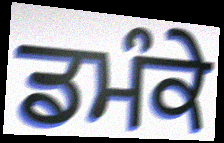
ਡਮੰਕੇ